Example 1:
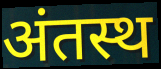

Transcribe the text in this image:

अंतस्थ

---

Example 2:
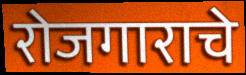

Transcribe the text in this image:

रोजगाराचे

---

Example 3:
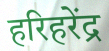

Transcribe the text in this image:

हरिहरेंद्र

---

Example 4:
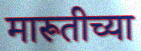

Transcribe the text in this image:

मारूतीच्या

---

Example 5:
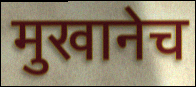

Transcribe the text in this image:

मुखानेच